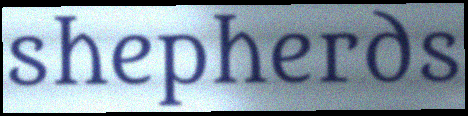
shepherds